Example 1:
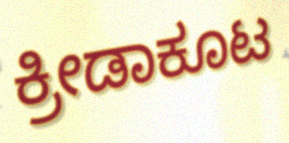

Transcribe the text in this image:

ಕ್ರೀಡಾಕೂಟ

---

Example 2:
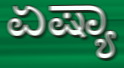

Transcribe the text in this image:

ಏಷ್ಯಾ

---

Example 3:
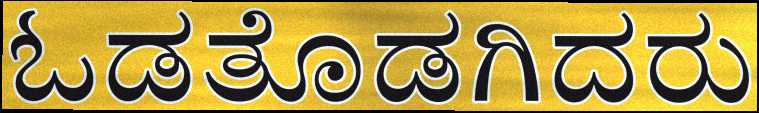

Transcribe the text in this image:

ಓಡತೊಡಗಿದರು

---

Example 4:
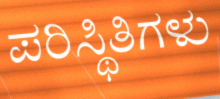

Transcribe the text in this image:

ಪರಿಸ್ಥಿತಿಗಳು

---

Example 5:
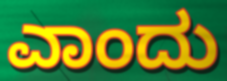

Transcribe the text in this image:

ಎಾಂದು